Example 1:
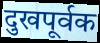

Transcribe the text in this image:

दुखपूर्वक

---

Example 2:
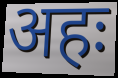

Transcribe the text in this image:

अहः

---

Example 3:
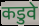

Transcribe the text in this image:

कडुवे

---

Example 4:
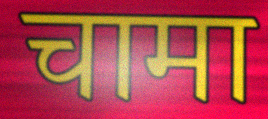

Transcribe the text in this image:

चामा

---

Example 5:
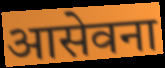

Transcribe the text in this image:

आसेवना